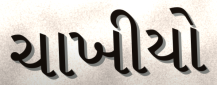
ચાખીયો